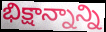
భిక్షాన్నాన్ని